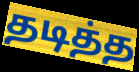
தடித்த